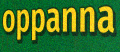
oppanna